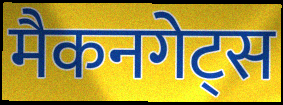
मैकनगेट्स